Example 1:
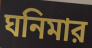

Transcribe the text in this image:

ঘনিমার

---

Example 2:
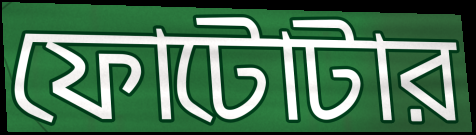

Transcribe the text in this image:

ফোটোটার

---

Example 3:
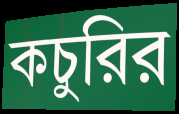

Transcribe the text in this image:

কচুরির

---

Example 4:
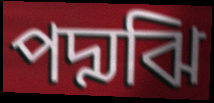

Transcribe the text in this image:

পদ্মঝি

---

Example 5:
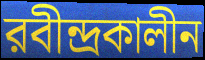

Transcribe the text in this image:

রবীন্দ্রকালীন